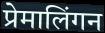
प्रेमालिंगन